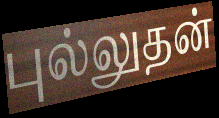
புல்லுதன்